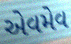
એવમેવ